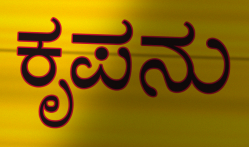
ಕೃಪನು